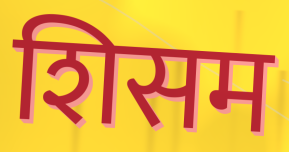
शिसम